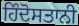
ਹਿੰਦੋਸਤਾਨੀ